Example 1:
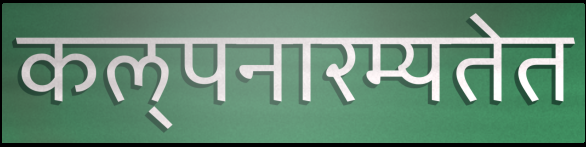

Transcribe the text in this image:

कल्पनारम्यतेत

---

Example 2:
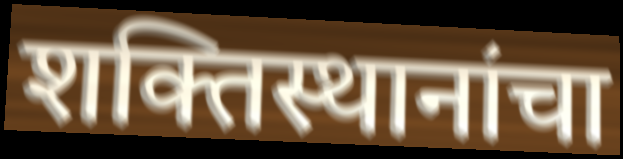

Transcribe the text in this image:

शक्तिस्थानांचा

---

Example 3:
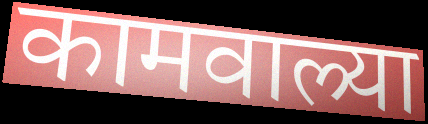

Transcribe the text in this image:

कामवाल्या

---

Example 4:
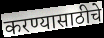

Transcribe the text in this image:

करण्यासाठीचे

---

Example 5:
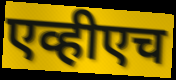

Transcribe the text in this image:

एव्हीएच